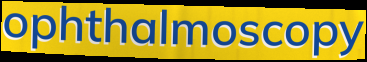
ophthalmoscopy